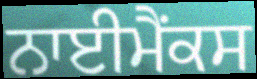
ਨਾਈਮੈਂਕਸ